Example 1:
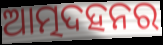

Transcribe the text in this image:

ଆତ୍ମଦହନର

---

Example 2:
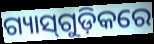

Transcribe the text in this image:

ଗ୍ୟାସ୍‌ଗୁଡ଼ିକରେ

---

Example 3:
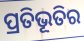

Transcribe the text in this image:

ପ୍ରତିଭୂତିର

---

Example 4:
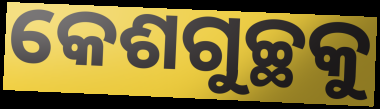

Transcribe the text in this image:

କେଶଗୁଚ୍ଛକୁ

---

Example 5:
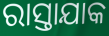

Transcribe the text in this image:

ରାସ୍ତାଯାକ